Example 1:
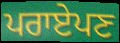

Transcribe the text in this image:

ਪਰਾਏਪਣ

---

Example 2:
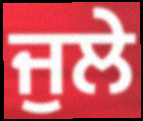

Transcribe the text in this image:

ਜੁਲੇ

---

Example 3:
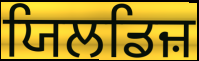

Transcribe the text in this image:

ਯਿਲਡਿਜ਼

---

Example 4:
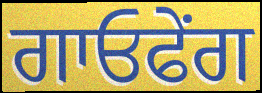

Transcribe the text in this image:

ਗਾਓਫੇਂਗ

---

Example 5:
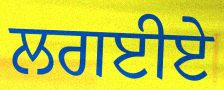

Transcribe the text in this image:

ਲਗਈਏ